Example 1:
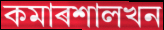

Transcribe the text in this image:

কমাৰশালখন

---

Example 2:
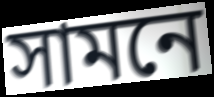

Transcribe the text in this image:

সামনে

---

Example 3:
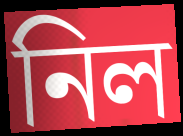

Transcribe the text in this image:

নিল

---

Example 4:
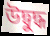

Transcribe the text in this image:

উদ্বুদ্ধ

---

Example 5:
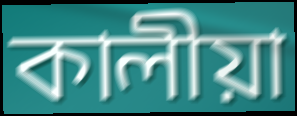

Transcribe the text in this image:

কালীয়া